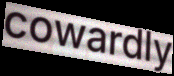
cowardly